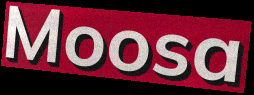
Moosa